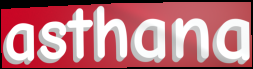
asthana